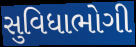
સુવિધાભોગી